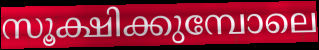
സൂക്ഷിക്കുമ്പോലെ